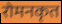
रोमनकृत